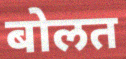
बोलत